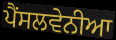
ਪੈਂਸਲਵੇਨੀਆ